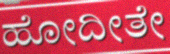
ಹೋದೀತೇ